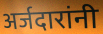
अर्जदारांनी